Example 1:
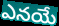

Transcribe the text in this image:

ఎనయే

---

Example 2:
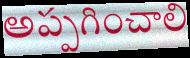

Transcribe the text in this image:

అప్పగించాలి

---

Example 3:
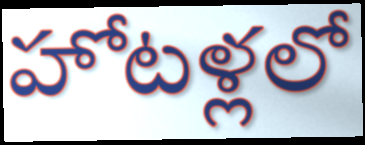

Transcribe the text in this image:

హోటళ్లలో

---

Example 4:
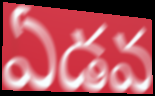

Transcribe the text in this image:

ఏడవ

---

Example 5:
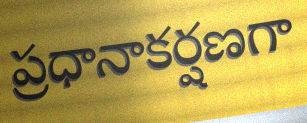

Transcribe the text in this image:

ప్రధానాకర్షణగా